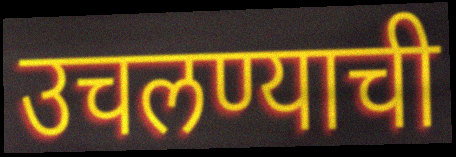
उचलण्याची